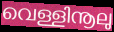
വെള്ളിനൂലു